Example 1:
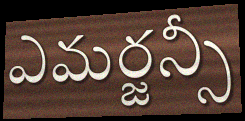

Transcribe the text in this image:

ఎమర్జన్సీ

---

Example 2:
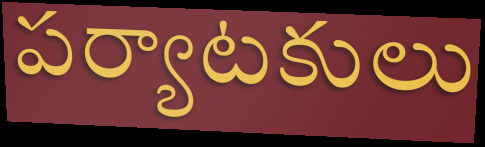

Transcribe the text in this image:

పర్యాటకులు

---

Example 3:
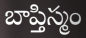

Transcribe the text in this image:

బాప్తిస్మం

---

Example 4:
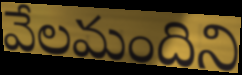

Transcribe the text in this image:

వేలమందిని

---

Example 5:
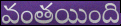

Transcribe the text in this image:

వంతయింది